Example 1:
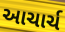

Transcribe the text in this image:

આચાર્ચ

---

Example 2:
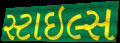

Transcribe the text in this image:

સ્ટાઇલ્સ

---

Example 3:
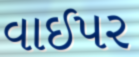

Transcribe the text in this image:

વાઈપર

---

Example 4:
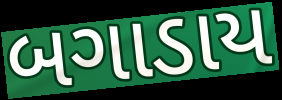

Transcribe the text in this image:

બગાડાય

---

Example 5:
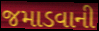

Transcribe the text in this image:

જમાડવાની